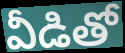
వీడితో